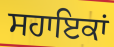
ਸਹਾਇਕਾਂ